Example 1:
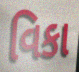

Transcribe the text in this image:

વિકા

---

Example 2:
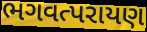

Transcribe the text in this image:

ભગવત્પરાયણ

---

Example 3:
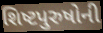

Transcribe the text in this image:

શિષ્ટપુરુષોની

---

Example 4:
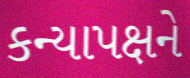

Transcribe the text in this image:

કન્યાપક્ષને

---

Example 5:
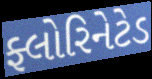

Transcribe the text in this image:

ફ્લોરિનેટેડ